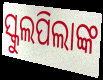
ସ୍କୁଲପିଲାଙ୍କ